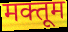
मक्तूम